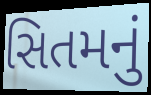
સિતમનું